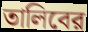
তালিবের